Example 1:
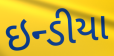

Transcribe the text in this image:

ઇન્ડીયા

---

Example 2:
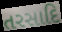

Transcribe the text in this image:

તરસાદિ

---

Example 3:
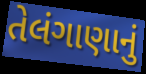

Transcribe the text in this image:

તેલંગાણાનું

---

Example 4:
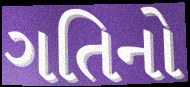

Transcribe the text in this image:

ગતિનો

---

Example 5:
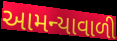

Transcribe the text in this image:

આમન્યાવાળી